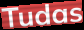
Tudas